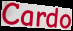
Cardo